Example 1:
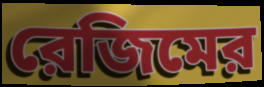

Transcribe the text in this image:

রেজিমের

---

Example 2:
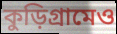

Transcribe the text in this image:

কুড়িগ্রামেও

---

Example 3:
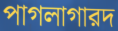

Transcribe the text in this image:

পাগলাগারদ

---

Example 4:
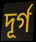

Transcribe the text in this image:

দূর্গ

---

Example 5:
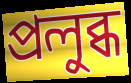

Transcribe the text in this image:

প্রলুব্ধ